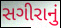
સગીરાનું